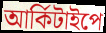
আর্কিটাইপে